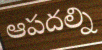
ఆపదల్ని